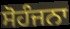
ਸੋਹੰਜਨਾ